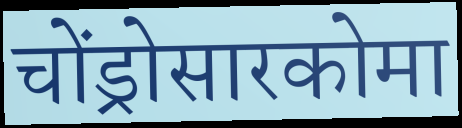
चोंड्रोसारकोमा